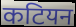
कटियन